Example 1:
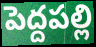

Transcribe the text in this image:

పెద్దపల్లి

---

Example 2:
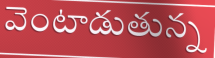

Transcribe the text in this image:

వెంటాడుతున్న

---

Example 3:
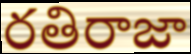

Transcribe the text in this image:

రతిరాజా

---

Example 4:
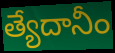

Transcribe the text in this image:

త్యేదానీం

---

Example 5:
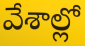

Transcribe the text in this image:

వేశాల్లో